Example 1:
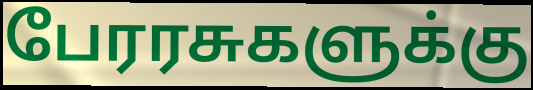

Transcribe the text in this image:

பேரரசுகளுக்கு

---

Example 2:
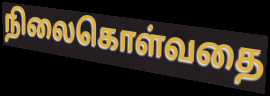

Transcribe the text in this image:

நிலைகொள்வதை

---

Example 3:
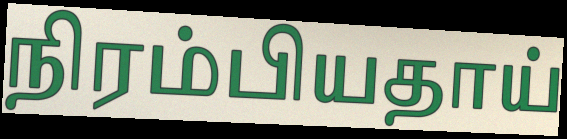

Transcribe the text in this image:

நிரம்பியதாய்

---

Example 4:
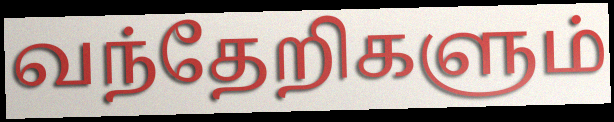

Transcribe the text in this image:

வந்தேறிகளும்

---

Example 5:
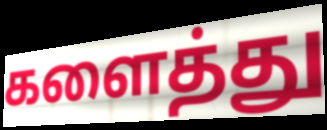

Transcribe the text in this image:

களைத்து